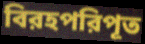
বিরহপরিপূত